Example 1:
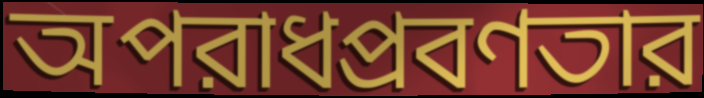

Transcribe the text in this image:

অপরাধপ্রবণতার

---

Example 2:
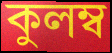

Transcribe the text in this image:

কুলম্ব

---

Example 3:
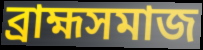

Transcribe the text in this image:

ব্রাহ্মসমাজ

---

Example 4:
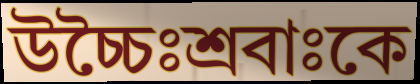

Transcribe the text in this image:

উচ্চৈঃশ্রবাঃকে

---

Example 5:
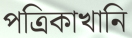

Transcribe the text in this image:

পত্রিকাখানি